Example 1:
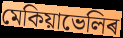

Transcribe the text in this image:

মেকিয়াভেলিৰ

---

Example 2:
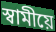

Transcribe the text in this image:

স্বামীয়ে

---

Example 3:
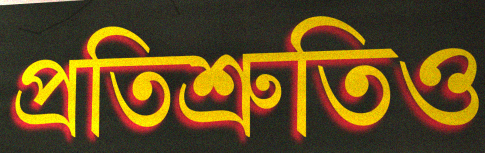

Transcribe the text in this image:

প্ৰতিশ্ৰুতিও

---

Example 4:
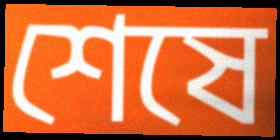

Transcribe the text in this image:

শেষে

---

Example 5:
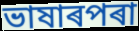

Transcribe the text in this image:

ভাষাৰপৰা